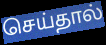
செய்தால்